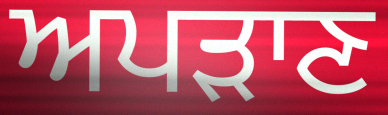
ਅਪੜਾਣ